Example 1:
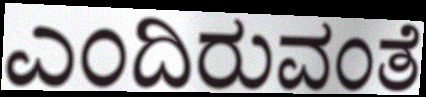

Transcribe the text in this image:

ಎಂದಿರುವಂತೆ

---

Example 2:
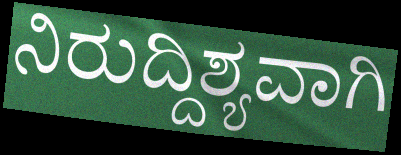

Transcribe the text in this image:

ನಿರುದ್ದಿಶ್ಯವಾಗಿ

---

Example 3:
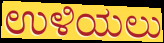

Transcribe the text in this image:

ಉಳಿಯಲು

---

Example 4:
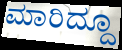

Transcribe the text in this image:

ಮಾರಿದ್ದೂ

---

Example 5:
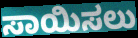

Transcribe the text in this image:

ಸಾಯಿಸಲು